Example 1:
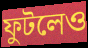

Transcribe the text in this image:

ফুটলেও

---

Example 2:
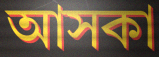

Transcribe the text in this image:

আসকা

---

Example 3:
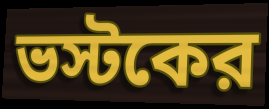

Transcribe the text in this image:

ভস্টকের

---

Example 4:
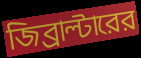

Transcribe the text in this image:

জিব্রাল্টারের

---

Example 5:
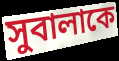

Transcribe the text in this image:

সুবালাকে